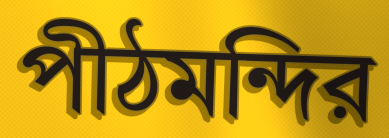
পীঠমন্দির